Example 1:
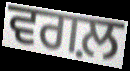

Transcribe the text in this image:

ਵਗਲ਼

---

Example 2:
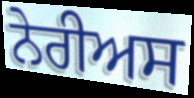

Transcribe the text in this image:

ਨੇਰੀਅਸ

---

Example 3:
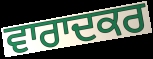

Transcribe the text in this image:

ਵਾਰਾਦਕਰ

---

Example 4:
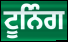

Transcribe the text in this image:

ਟੂਨਿੰਗ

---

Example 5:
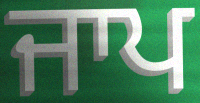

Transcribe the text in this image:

ਜਾਪ